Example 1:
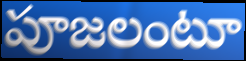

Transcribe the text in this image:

పూజలంటూ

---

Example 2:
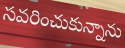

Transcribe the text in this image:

సవరించుకున్నాను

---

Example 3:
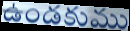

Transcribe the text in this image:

ఉండకుము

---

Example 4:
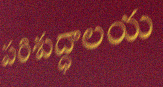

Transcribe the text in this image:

పరిశుద్ధాలయ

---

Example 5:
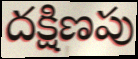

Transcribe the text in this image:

దక్షిణపు